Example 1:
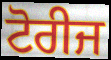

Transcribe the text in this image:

ਟੋਰੀਜ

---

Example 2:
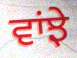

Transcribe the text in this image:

ਵਾਂਝੇ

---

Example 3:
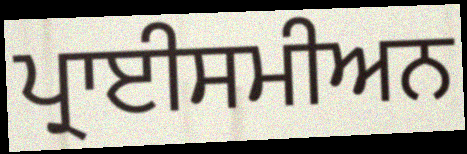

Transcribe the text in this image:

ਪ੍ਰਾਈਸਮੀਅਨ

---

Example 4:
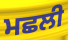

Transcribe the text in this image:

ਮਛਲੀ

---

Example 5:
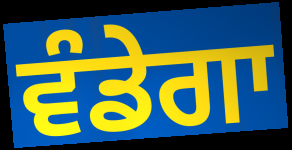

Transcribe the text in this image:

ਵੰਡੇਗਾ